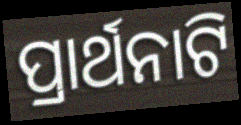
ପ୍ରାର୍ଥନାଟି